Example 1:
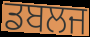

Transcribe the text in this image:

ਡਬਲਜ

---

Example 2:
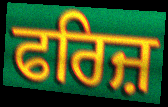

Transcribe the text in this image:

ਫਰਿਜ਼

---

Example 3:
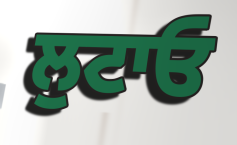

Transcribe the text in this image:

ਲੁਟਾਓ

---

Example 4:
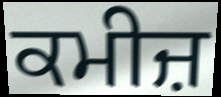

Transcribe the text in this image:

ਕਮੀਜ਼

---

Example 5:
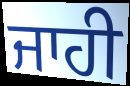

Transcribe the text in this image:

ਜਾਹੀ